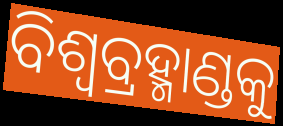
ବିଶ୍ବବ୍ରହ୍ମାଣ୍ଡକୁ